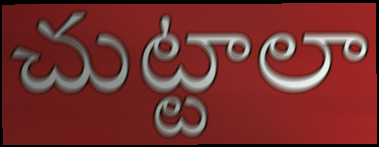
చుట్టాలా